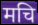
मचि